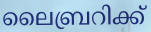
ലൈബ്രറിക്ക്